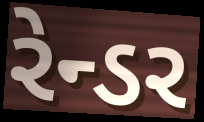
રેન્ડર